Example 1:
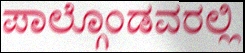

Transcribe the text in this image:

ಪಾಲ್ಗೊಂಡವರಲ್ಲಿ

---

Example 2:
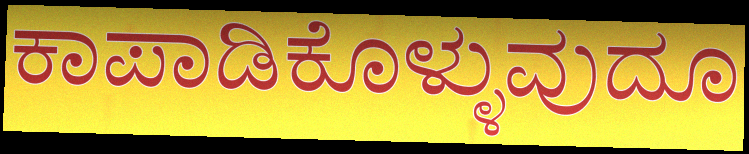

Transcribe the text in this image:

ಕಾಪಾಡಿಕೊಳ್ಳುವುದೂ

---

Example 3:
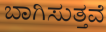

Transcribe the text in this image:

ಬಾಗಿಸುತ್ತವೆ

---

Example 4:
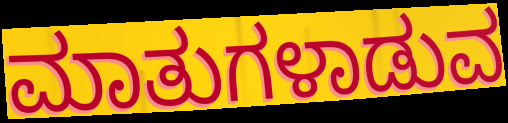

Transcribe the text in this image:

ಮಾತುಗಳಾಡುವ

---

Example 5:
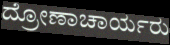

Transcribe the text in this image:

ದ್ರೋಣಾಚಾರ್ಯರು